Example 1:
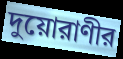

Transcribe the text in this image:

দুয়োরাণীর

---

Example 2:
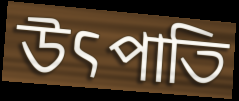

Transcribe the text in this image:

উৎপাতি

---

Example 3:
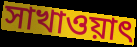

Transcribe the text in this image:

সাখাওয়াৎ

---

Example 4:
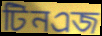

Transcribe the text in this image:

টিনএজ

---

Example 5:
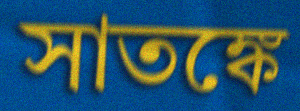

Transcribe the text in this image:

সাতঙ্কে